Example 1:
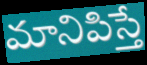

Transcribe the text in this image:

మానిపిస్తే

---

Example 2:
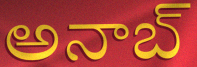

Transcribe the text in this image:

అనాబ్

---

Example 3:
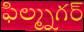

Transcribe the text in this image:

ఫిల్మ్నగర్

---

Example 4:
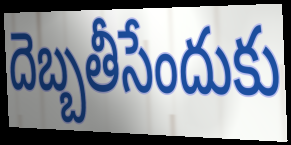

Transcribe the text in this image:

దెబ్బతీసేందుకు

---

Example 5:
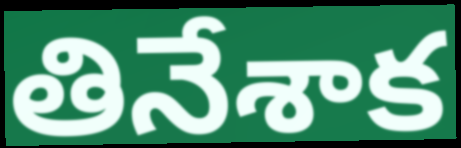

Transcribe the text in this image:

తినేశాక